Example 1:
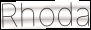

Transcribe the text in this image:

Rhoda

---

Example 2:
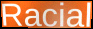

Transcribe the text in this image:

Racial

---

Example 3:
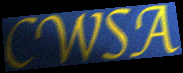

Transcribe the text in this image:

CWSA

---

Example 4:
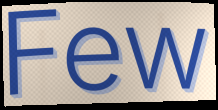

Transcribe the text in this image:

Few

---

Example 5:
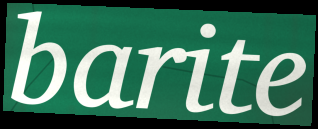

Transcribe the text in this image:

barite